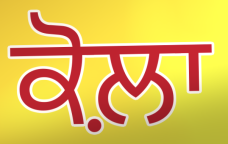
ਕੋਲ਼ਾ